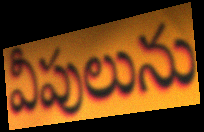
వీపులును